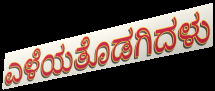
ಎಳೆಯತೊಡಗಿದಳು